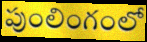
పుంలింగంలో